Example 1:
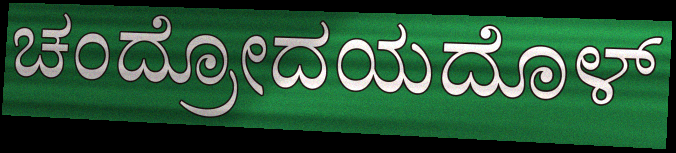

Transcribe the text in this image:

ಚಂದ್ರೋದಯದೊಳ್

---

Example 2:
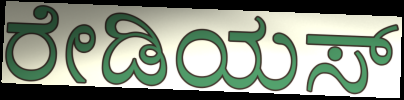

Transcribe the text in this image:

ರೇಡಿಯಸ್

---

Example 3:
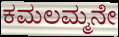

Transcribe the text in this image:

ಕಮಲಮ್ಮನೇ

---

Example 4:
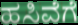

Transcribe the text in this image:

ಹಸಿವೆಗೆ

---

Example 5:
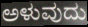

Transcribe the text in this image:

ಅಳುವುದು